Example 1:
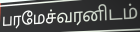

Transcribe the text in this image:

பரமேச்வரனிடம்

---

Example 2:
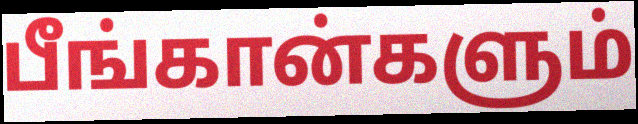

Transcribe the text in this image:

பீங்கான்களும்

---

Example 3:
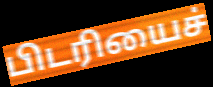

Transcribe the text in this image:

பிடரியைச்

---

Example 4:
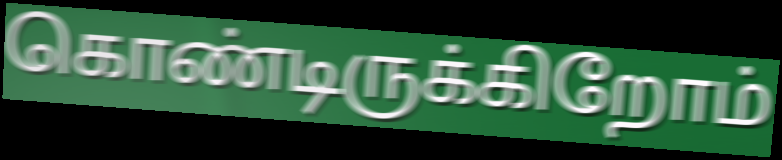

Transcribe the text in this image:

கொண்டிருக்கிறோம்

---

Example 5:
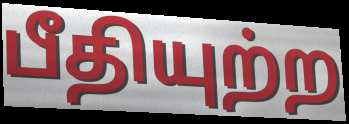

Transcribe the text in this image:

பீதியுற்ற